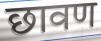
छावण